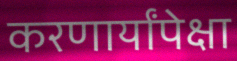
करणार्यांपेक्षा